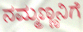
ನಮ್ಮಣ್ಣನಿಗೆ